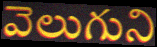
వెలుగుని